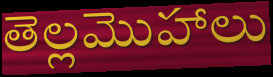
తెల్లమొహాలు